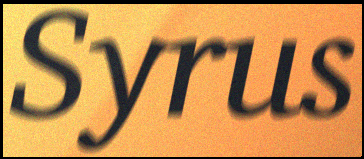
Syrus